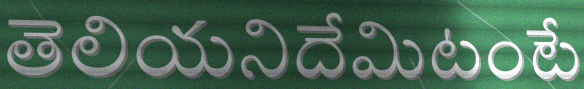
తెలియనిదేమిటంటే